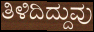
ತಿಳಿದಿದ್ದುವು